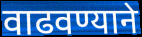
वाढवण्याने